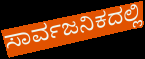
ಸಾರ್ವಜನಿಕದಲ್ಲಿ